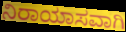
ನಿರಾಯಾಸವಾಗಿ